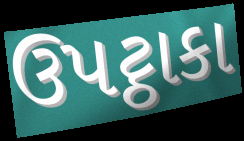
ઉપટ્ઠાકા